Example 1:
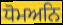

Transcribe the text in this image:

ਧੋਮਅਨਿ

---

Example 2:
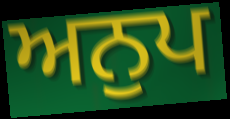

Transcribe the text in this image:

ਅਨੁਪ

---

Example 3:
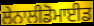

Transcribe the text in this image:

ਲੇਨਾਲੀਡੋਮਾਈਡ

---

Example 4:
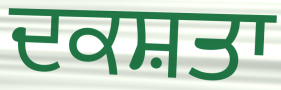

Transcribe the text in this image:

ਦਕਸ਼ਤਾ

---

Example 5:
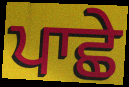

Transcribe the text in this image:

ਪਾਛੇ